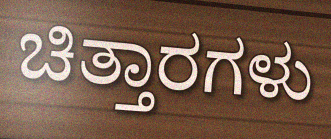
ಚಿತ್ತಾರಗಳು